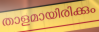
താളമായിരിക്കും